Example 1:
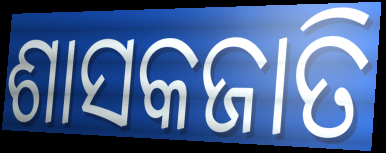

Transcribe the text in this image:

ଶାସକଜାତି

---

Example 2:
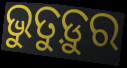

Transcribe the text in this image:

ଭୁତୁଡ଼ୁର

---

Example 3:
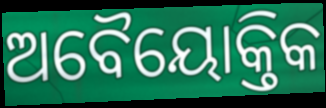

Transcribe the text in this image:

ଅବୈୟୋକ୍ତିକ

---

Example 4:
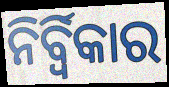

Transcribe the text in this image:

ନିର୍ବ୍ବିକାର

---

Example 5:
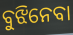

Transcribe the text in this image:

ବୁଝିନେବା